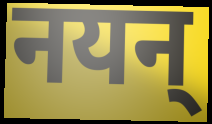
नयन्